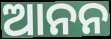
ଆନନ